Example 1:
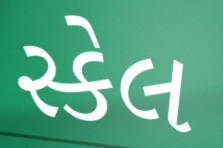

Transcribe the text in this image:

સ્કેલ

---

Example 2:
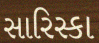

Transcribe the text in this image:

સારિસ્કા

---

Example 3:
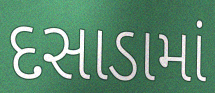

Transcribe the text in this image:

દસાડામાં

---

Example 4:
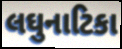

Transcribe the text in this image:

લઘુનાટિકા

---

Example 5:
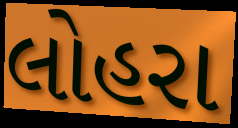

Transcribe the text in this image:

લોહરા